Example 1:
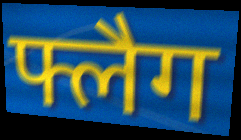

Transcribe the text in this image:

फ्लैग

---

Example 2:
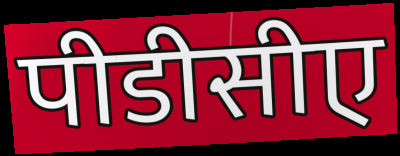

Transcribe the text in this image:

पीडीसीए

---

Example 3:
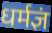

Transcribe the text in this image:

धर्मज्ञं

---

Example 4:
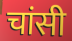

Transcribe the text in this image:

चांसी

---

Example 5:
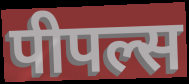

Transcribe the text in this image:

पीपल्स